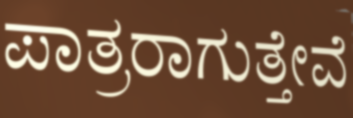
ಪಾತ್ರರಾಗುತ್ತೇವೆ